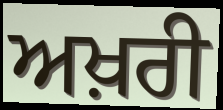
ਅਖ਼ਰੀ